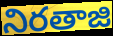
నిరతాజి